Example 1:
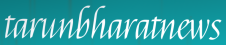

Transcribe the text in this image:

tarunbharatnews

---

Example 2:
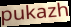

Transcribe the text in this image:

pukazh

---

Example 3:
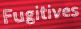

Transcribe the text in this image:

Fugitives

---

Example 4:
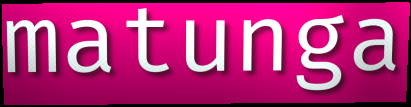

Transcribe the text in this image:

matunga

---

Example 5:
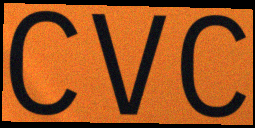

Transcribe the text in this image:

CVC